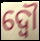
ଦ୍ଵୌ